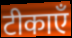
टीकाएँ